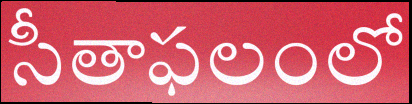
సీతాఫలంలో